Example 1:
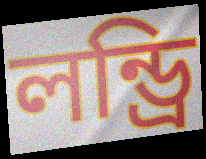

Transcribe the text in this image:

লন্ড্রি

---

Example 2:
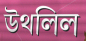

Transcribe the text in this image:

উথলিল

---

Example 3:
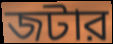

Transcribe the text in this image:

জটার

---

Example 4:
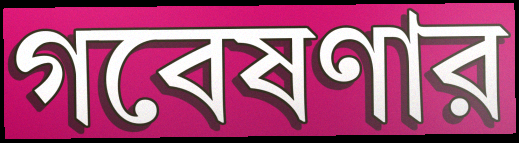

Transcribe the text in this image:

গবেষণার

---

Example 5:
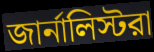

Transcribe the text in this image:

জার্নালিস্টরা